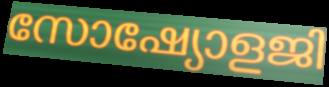
സോഷ്യോളജി